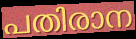
പതിരാന